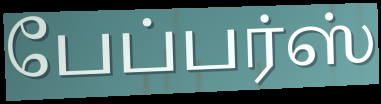
பேப்பர்ஸ்